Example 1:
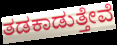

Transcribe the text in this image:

ತಡಕಾಡುತ್ತೇವೆ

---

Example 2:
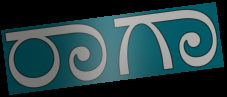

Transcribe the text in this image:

ರಾಗಾ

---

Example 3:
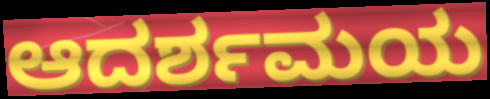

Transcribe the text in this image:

ಆದರ್ಶಮಯ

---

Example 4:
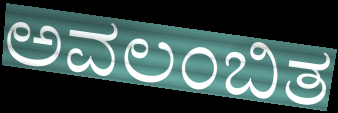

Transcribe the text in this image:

ಅವಲಂಬಿತ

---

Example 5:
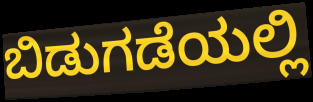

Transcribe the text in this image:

ಬಿಡುಗಡೆಯಲ್ಲಿ